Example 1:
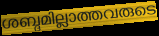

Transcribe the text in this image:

ശബ്ദമില്ലാത്തവരുടെ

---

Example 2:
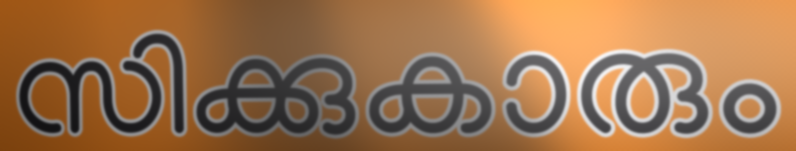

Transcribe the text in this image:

സിക്കുകാരും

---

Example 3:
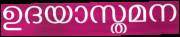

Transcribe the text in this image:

ഉദയാസ്തമന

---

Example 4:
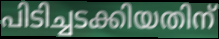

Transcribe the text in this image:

പിടിച്ചടക്കിയതിന്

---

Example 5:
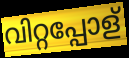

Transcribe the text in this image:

വിറ്റപ്പോള്